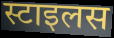
स्टाइलस